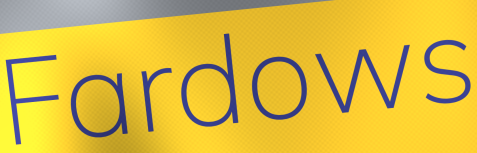
Fardows